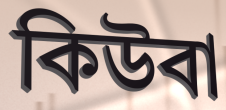
কিউবা